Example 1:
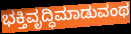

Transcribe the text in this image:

ಭಕ್ತಿವೃದ್ಧಿಮಾಡುವಂಥ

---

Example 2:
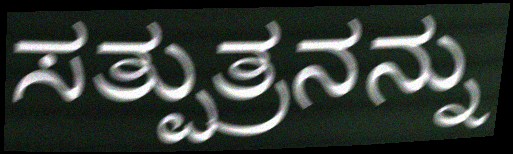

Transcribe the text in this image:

ಸತ್ಪುತ್ರನನ್ನು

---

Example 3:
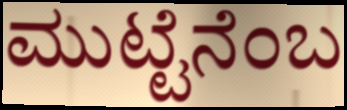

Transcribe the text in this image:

ಮುಟ್ಟೆನೆಂಬ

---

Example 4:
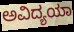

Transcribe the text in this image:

ಅವಿದ್ಯಯಾ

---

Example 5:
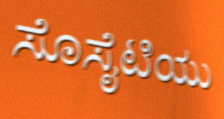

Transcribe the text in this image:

ಸೊಸೈಟಿಯು